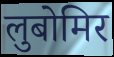
लुबोमिर